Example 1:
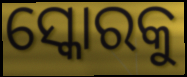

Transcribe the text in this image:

ସ୍କୋରକୁ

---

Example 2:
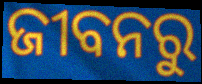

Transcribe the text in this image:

ଜୀବନରୁ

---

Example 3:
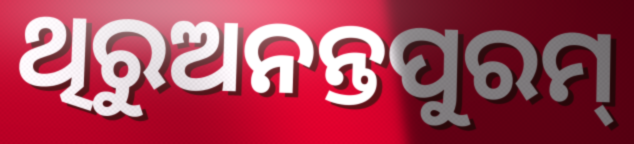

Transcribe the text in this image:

ଥିରୁଅନନ୍ତପୁରମ୍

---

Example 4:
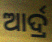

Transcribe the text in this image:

ଆର୍ଦ୍ର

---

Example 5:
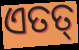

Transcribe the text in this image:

ଏତତ୍